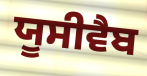
ਯੂਸੀਵੈਬ